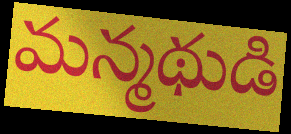
మన్మథుడి